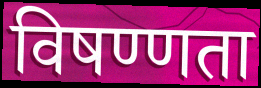
विषण्णता